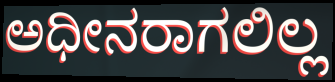
ಅಧೀನರಾಗಲಿಲ್ಲ